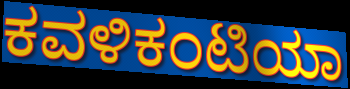
ಕವಳಿಕಂಟಿಯಾ